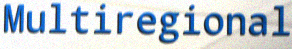
Multiregional